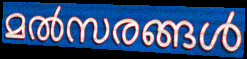
മൽസരങ്ങൾ